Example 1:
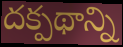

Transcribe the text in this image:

దక్పథాన్ని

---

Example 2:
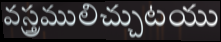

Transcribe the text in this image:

వస్త్రములిచ్చుటయు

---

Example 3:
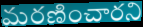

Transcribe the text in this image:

మరణించారని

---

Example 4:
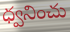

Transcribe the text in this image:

ధ్వనించు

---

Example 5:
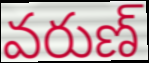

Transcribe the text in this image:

వరుణ్